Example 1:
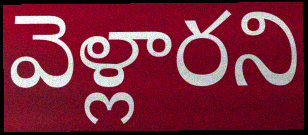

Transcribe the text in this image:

వెళ్లారని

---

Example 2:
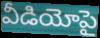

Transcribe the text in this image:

వీడియోపై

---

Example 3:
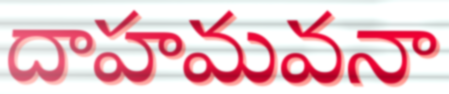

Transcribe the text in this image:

దాహమవనా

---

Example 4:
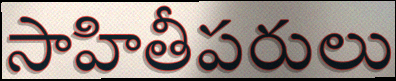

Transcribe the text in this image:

సాహితీపరులు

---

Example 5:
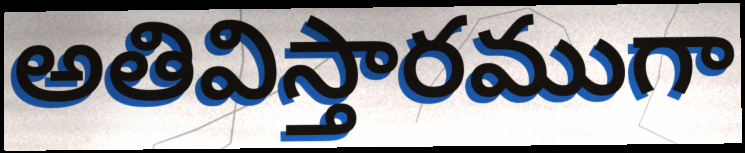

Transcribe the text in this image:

అతివిస్తారముగా